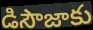
డిసౌజాకు